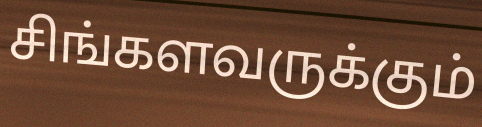
சிங்களவருக்கும்